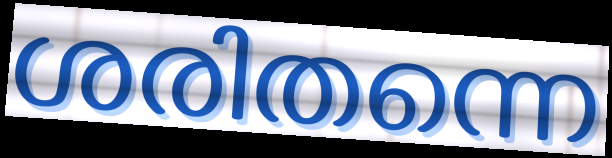
ശരിതന്നെ